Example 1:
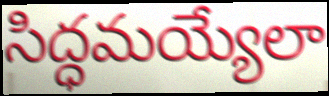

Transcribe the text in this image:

సిద్ధమయ్యేలా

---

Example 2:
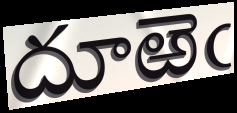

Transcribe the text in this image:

దూఱెఁ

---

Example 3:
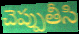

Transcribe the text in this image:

చెప్పుతీసి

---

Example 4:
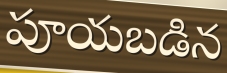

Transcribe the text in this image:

పూయబడిన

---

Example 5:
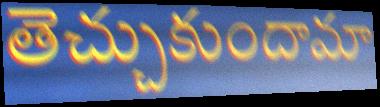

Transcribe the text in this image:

తెచ్చుకుందామా